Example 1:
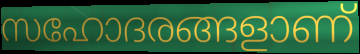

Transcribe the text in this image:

സഹോദരങ്ങളാണ്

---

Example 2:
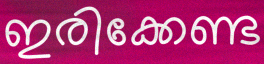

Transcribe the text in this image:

ഇരിക്കേണ്ട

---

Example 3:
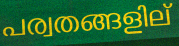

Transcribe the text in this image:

പര്വതങ്ങളില്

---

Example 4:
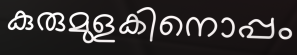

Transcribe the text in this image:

കുരുമുളകിനൊപ്പം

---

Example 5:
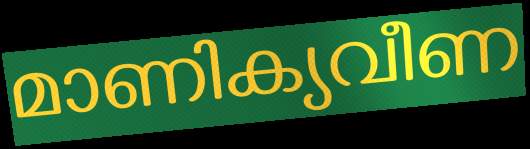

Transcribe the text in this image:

മാണിക്യവീണ